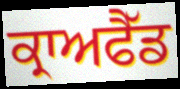
ਕ੍ਰਾਅਫੈੱਡ